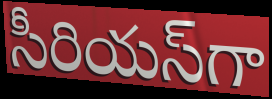
సీరియస్‌గా